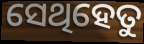
ସେଥିହେତୁ